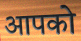
आपको